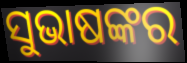
ସୁଭାଷଙ୍କର